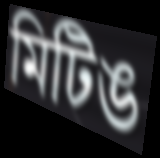
মিটিঙ